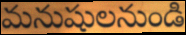
మనుషులనుండి